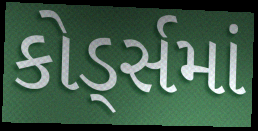
કોર્ડ્સમાં